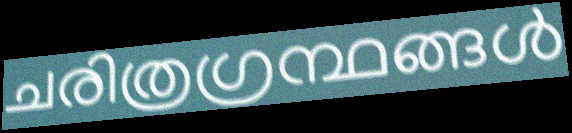
ചരിത്രഗ്രന്ഥങ്ങൾ